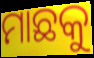
ମାଛକୁ